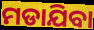
ମଡାଯିବା